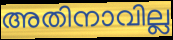
അതിനാവില്ല